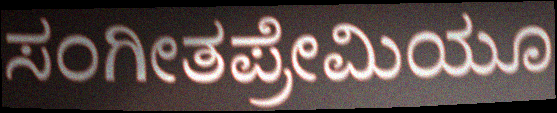
ಸಂಗೀತಪ್ರೇಮಿಯೂ